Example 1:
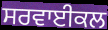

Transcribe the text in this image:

ਸਰਵਾਈਕਲ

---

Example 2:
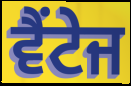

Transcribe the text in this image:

ਵੈਂਟੇਜ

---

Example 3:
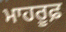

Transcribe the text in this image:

ਮਾਹਰੂਫ਼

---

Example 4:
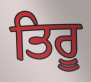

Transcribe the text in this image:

ਤਿਰੂ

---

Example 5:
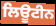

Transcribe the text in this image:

ਲਿਊਟੀਨ